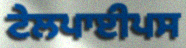
ਟੇਲਪਾਈਪਸ